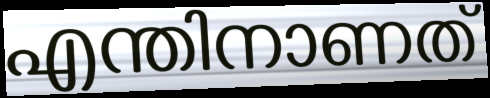
എന്തിനാണത്